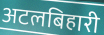
अटलबिहारी